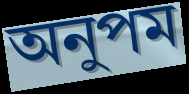
অনুপম